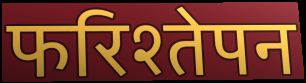
फरिश्तेपन